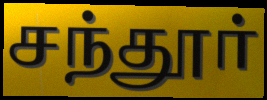
சந்தூர்